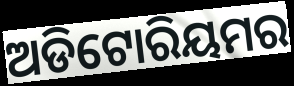
ଅଡିଟୋରିୟମର